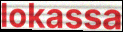
lokassa